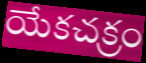
యేకచక్రం